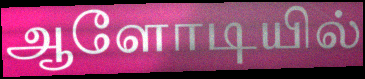
ஆளோடியில்